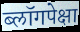
ब्लॉगपेक्षा